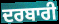
ਦਰਬਾਰੀ